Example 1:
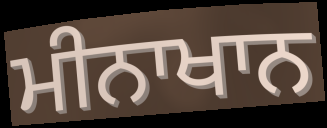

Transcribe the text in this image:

ਮੀਨਾਖਾਨ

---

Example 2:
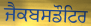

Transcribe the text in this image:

ਜੈਕਬਸਡੌਟਿਰ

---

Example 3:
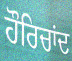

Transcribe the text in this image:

ਹੌਰਿਚਾਂਦ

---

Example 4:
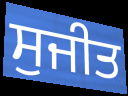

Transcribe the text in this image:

ਸੁਜੀਤ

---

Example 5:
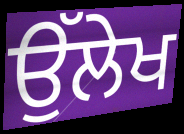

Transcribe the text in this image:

ਉੱਲੇਖ